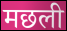
मछली